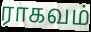
ராகவம்